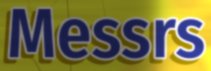
Messrs